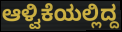
ಆಳ್ವಿಕೆಯಲ್ಲಿದ್ದ